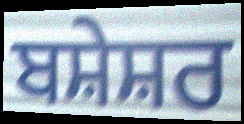
ਬਸ਼ੇਸ਼ਰ